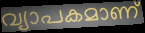
വ്യാപകമാണ്